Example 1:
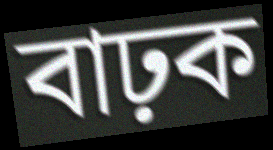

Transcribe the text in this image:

বাঢ়ক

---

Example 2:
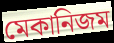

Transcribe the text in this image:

মেকানিজম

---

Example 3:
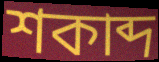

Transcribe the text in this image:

শকাব্দ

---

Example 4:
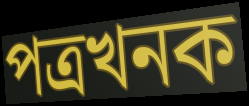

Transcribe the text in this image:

পত্ৰখনক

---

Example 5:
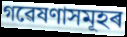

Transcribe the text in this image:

গৱেষণাসমূহৰ